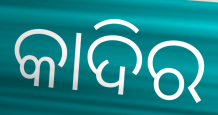
କାଦିର